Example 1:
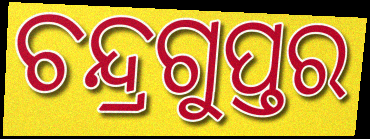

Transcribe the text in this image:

ଚନ୍ଦ୍ରଗୁପ୍ତର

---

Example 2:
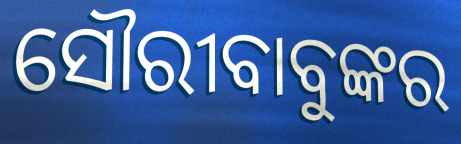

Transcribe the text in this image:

ସୌରୀବାବୁଙ୍କର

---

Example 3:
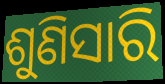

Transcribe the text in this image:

ଶୁଣିସାରି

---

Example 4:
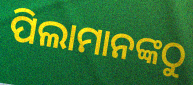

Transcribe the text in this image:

ପିଲାମାନଙ୍କଠୁ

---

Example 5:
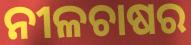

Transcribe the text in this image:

ନୀଳଚାଷର